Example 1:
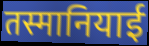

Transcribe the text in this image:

तस्मानियाई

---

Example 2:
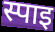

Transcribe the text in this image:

स्पाइ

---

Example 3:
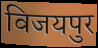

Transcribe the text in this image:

विजयपुर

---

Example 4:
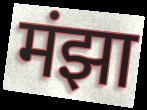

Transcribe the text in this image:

मंझा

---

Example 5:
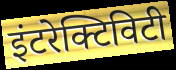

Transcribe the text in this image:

इंटरेक्टिविटी